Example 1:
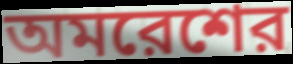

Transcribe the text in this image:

অমরেশের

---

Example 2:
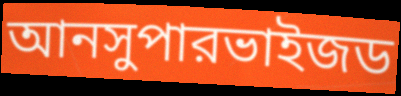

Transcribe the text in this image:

আনসুপারভাইজড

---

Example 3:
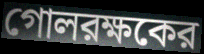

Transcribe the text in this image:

গোলরক্ষকের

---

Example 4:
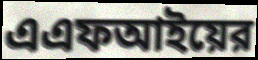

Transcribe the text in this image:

এএফআইয়ের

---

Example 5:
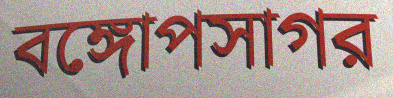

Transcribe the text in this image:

বঙ্গোপসাগর